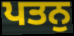
ਪਤਨੁ